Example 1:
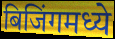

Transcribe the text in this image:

बिजिंगमध्ये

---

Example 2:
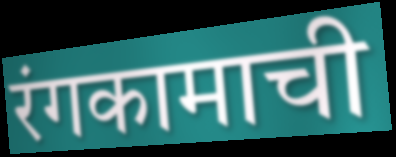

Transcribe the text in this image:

रंगकामाची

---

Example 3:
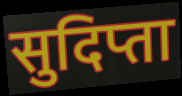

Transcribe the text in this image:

सुदिप्ता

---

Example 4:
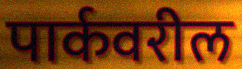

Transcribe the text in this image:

पार्कवरील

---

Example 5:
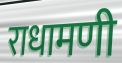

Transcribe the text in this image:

राधामणी